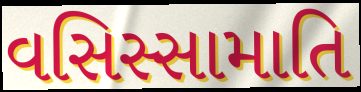
વસિસ્સામાતિ